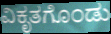
ವಿಕೃತಗೊಂಡು